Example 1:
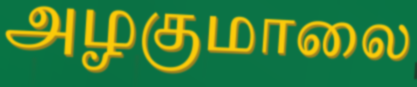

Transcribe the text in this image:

அழகுமாலை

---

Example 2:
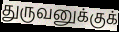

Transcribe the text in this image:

துருவனுக்குக்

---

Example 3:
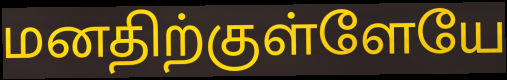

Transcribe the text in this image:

மனதிற்குள்ளேயே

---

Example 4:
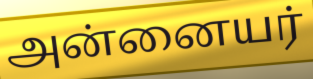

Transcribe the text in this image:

அன்னையர்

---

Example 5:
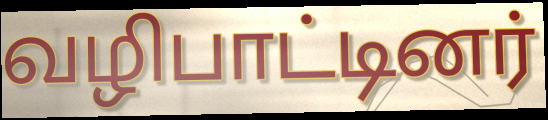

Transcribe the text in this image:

வழிபாட்டினர்